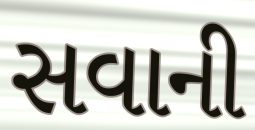
સવાની